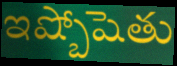
ఇష్బోషెతు